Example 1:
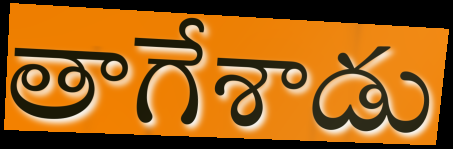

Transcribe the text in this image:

తాగేశాడు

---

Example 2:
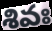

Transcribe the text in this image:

శివః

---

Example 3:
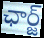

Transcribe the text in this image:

ఛార్జ్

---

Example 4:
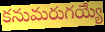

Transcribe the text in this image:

కనుమరుగయ్యే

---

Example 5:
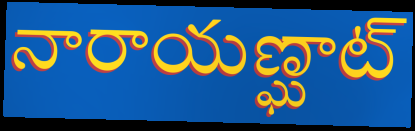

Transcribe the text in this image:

నారాయణ్ఘాట్